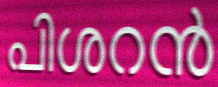
പിശറൻ